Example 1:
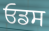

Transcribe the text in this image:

ਓਡਸ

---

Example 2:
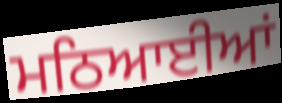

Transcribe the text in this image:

ਮਠਿਆਈਆਂ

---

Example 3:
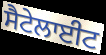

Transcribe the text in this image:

ਸੈਟੇਲਾਈਟ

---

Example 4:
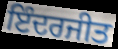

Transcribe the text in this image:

ਇੰਦਰਜੀਤ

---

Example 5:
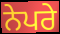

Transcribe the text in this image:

ਨੇਪਰੇ